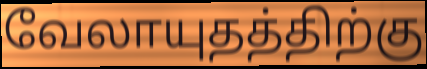
வேலாயுதத்திற்கு